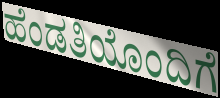
ಹೆಂಡತಿಯೊಂದಿಗೆ